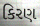
કિરણ